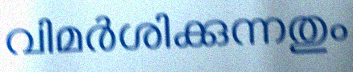
വിമർശിക്കുന്നതും